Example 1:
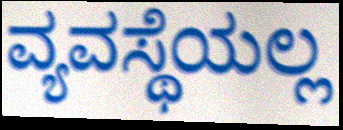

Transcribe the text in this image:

ವ್ಯವಸ್ಥೆಯಲ್ಲ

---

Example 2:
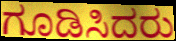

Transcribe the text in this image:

ಗೂಡಿಸಿದರು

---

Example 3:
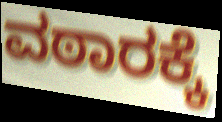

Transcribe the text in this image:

ವಠಾರಕ್ಕೆ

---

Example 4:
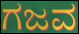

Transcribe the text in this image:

ಗಜವ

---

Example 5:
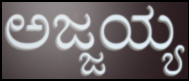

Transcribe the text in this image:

ಅಜ್ಜಯ್ಯ